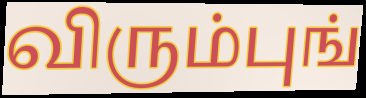
விரும்புங்